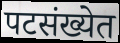
पटसंख्येत